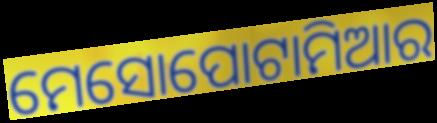
ମେସୋପୋଟାମିଆର